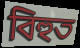
বিহুত